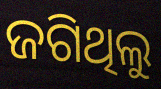
ଜଗିଥିଲୁ